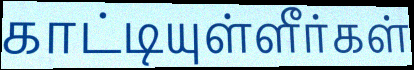
காட்டியுள்ளீர்கள்